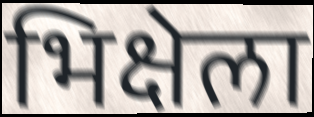
भिक्षेला